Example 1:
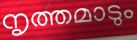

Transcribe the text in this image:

നൃത്തമാടും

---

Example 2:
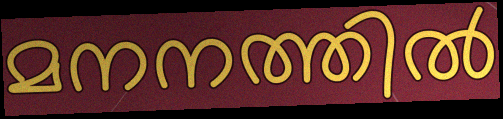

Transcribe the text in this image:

മനനത്തിൽ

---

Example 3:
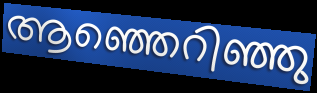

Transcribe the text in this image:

ആഞ്ഞെറിഞ്ഞു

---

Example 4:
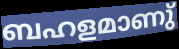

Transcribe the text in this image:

ബഹളമാണു്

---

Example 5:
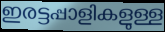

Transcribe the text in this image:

ഇരട്ടപ്പാളികളുള്ള